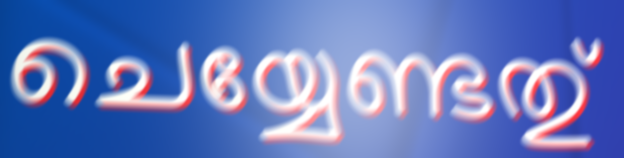
ചെയ്യേണ്ടതു്